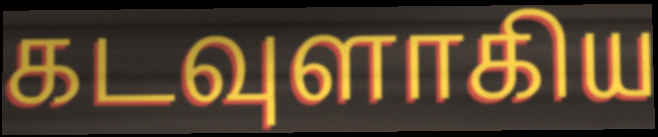
கடவுளாகிய